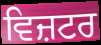
ਵਿਜ਼ਟਰ